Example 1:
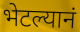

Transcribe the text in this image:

भेटल्यानं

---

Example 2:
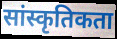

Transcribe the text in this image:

सांस्कृतिकता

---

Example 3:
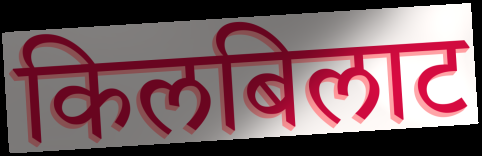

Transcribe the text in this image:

किलबिलाट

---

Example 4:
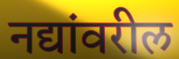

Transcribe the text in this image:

नद्यांवरील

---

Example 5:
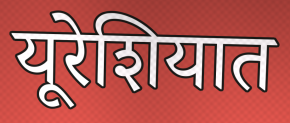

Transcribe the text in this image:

यूरेशियात